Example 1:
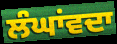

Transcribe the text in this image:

ਲੰਘਾਂਵਦਾ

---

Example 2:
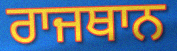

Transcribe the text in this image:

ਰਾਜਥਾਨ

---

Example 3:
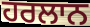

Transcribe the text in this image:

ਹਰਲਾਨ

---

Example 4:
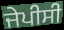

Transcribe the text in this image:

ਜੇਪੀਸੀ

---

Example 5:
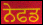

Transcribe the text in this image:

ਨੇਫਡ